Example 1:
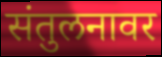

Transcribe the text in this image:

संतुलनावर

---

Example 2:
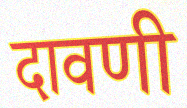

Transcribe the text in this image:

दावणी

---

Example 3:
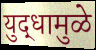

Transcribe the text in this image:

युद्धामुळे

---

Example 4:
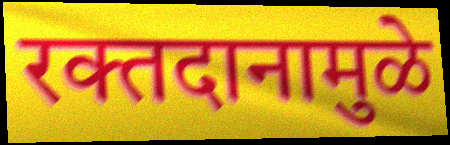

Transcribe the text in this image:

रक्तदानामुळे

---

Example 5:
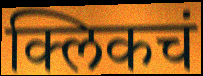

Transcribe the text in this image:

क्लिकचं